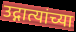
उद्गात्यांच्या